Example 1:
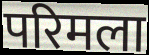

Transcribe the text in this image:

परिमला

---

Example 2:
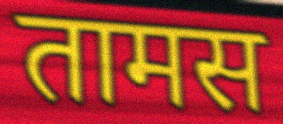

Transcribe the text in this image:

तामस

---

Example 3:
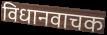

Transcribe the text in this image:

विधानवाचक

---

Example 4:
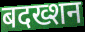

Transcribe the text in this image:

बदख्शन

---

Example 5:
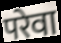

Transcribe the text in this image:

परेवा